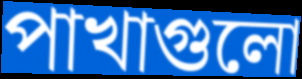
পাখাগুলো